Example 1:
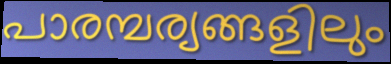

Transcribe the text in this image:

പാരമ്പര്യങ്ങളിലും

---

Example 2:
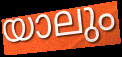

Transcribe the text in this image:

യാലും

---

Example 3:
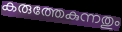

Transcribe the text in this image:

കരുത്തേകുന്നതും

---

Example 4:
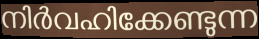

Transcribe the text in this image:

നിർവഹിക്കേണ്ടുന്ന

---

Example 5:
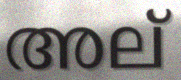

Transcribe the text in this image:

അല്